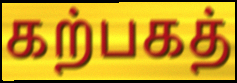
கற்பகத்